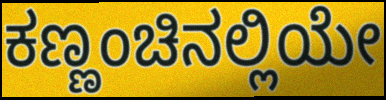
ಕಣ್ಣಂಚಿನಲ್ಲಿಯೇ